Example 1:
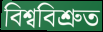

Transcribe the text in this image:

বিশ্ববিশ্ৰুত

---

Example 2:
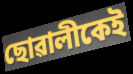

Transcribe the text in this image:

ছোৱালীকেই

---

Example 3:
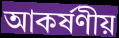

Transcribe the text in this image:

আকৰ্ষণীয়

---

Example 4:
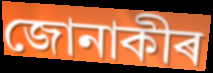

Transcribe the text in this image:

জোনাকীৰ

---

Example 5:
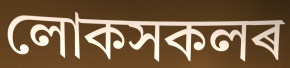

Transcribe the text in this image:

লোকসকলৰ